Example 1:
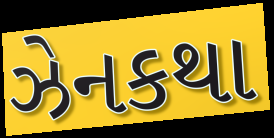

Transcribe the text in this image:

ઝેનકથા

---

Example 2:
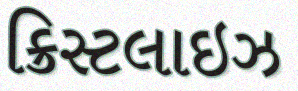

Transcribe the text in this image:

ક્રિસ્ટલાઇઝ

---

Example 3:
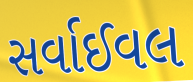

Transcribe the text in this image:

સર્વાઈવલ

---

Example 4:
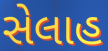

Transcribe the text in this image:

સેલાહ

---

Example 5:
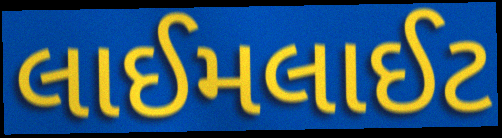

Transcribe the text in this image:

લાઈમલાઈટ